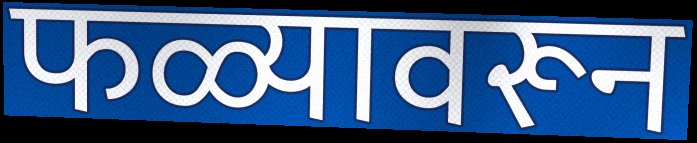
फळ्यावरून